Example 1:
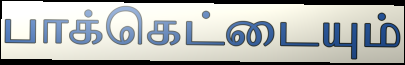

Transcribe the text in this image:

பாக்கெட்டையும்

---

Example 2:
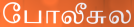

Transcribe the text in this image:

போலீசுல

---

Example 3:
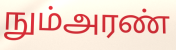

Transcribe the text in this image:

நும்அரண்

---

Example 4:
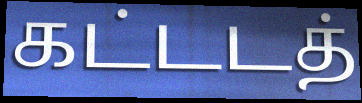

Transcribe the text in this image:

கட்டடத்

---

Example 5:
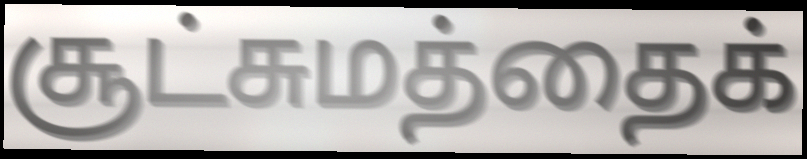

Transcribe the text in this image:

சூட்சுமத்தைக்